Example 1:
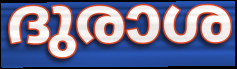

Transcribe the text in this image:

ദുരാശ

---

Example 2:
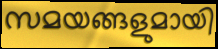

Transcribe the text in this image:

സമയങ്ങളുമായി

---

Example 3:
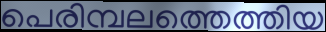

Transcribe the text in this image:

പെരിമ്പലത്തെത്തിയ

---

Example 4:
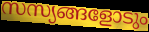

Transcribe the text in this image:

സസ്യങ്ങളോടും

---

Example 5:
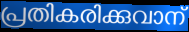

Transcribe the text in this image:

പ്രതികരിക്കുവാന്